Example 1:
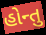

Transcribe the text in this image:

હોન્તુ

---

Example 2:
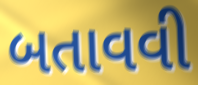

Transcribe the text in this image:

બતાવવી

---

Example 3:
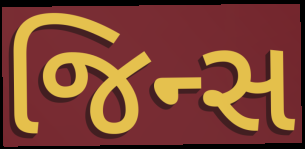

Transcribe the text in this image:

જિન્સ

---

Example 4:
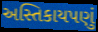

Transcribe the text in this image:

અસ્તિકાયપણું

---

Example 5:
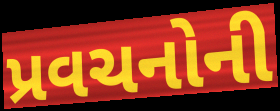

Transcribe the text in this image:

પ્રવચનોની